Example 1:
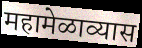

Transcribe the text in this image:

महामेळाव्यास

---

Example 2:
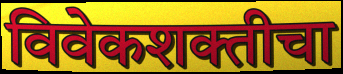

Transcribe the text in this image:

विवेकशक्तीचा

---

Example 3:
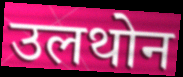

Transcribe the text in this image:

उलथोन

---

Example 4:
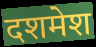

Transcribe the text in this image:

दशमेश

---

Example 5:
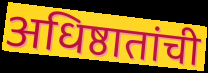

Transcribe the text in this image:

अधिष्ठातांची